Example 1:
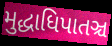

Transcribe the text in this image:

મુદ્ધાધિપાતઞ્ચ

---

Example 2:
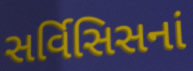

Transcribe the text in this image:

સર્વિસિસનાં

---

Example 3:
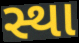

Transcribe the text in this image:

સ્થા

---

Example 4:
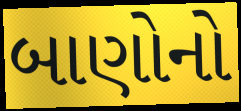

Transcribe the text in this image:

બાણોનો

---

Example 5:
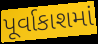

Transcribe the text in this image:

પૂર્વાકાશમાં